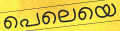
പെലെയെ